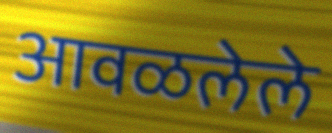
आवळलेले